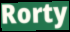
Rorty